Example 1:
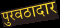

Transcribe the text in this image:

पुरवठादार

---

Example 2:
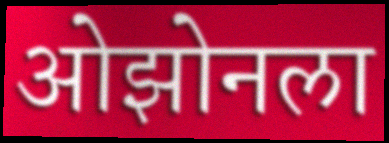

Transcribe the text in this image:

ओझोनला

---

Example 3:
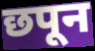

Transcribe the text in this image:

छपून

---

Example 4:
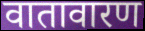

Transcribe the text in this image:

वातावारण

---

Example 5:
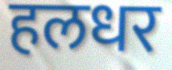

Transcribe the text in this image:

हलधर